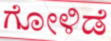
ಗೋಳಿಡೆ